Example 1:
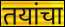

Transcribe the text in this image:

तयांचा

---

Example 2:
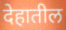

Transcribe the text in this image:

देहातील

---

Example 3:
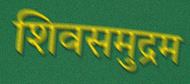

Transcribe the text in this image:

शिवसमुद्रम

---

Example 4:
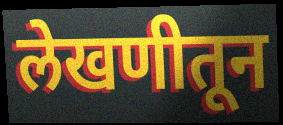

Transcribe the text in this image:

लेखणीतून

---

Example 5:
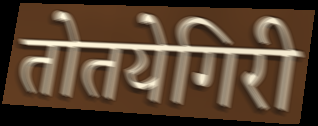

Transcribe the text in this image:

तोतयेगिरी